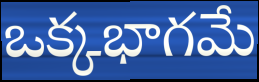
ఒక్కభాగమే